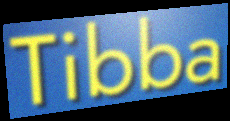
Tibba